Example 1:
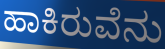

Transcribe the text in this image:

ಹಾಕಿರುವೆನು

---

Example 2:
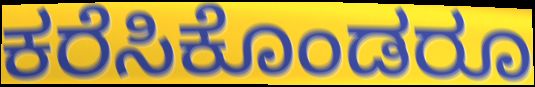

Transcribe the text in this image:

ಕರೆಸಿಕೊಂಡರೂ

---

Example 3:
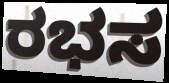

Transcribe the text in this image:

ರಭಸ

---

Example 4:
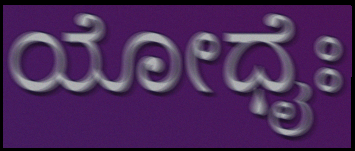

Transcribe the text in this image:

ಯೋಧೈಃ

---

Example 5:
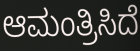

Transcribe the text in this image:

ಆಮಂತ್ರಿಸಿದೆ